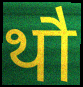
थौ